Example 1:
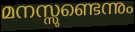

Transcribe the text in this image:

മനസ്സുണ്ടെന്നും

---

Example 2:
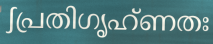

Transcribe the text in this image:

ഽപ്രതിഗൃഹ്ണതഃ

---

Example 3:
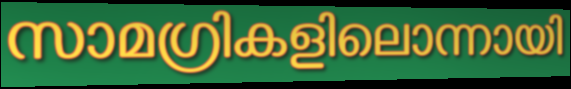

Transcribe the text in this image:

സാമഗ്രികളിലൊന്നായി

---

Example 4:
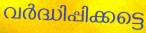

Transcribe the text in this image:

വർദ്ധിപ്പിക്കട്ടെ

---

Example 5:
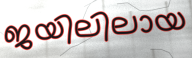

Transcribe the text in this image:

ജയിലിലായ